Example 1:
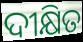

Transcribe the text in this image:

ଦୀକ୍ଷିତ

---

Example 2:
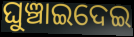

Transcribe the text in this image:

ଘୁଞ୍ଚାଇଦେଇ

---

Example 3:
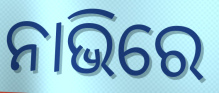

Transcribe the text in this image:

ନାଭିରେ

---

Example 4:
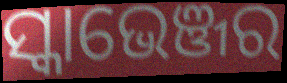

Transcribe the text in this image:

ସ୍କାଭେଞ୍ଜର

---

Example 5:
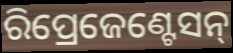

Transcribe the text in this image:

ରିପ୍ରେଜେଣ୍ଟେସନ୍